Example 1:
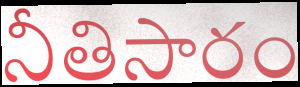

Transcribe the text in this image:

నీతిసారం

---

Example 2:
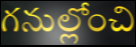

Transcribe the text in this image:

గనుల్లోంచి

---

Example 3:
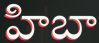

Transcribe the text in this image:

హిబా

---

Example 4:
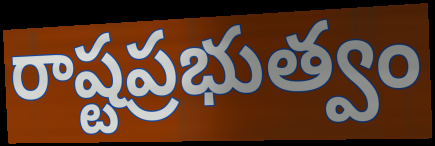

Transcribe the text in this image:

రాష్టప్రభుత్వం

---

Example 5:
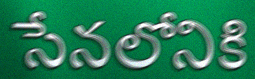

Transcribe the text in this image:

సేనలోనికి